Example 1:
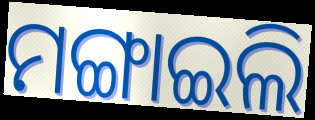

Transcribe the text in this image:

ମଙ୍ଗାଇଲି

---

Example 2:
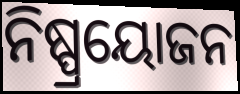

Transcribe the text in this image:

ନିଷ୍ପ୍ରୟୋଜନ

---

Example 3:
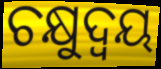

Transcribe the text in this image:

ଚକ୍ଷୁଦ୍ୱୟ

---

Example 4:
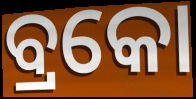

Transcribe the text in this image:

ବ୍ରକୋ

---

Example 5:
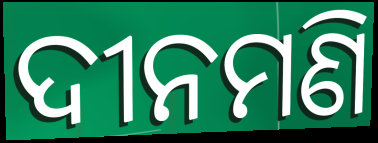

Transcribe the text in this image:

ଦୀନମଣି